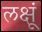
लक्षूं